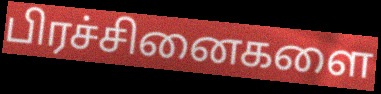
பிரச்சினைகளை